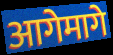
आगेमागे